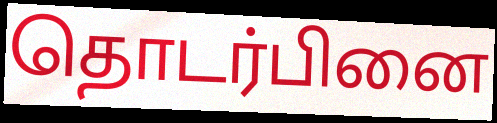
தொடர்பினை